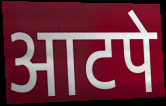
आटपे